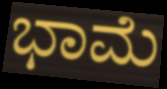
ಭಾಮೆ